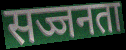
सज्जनता